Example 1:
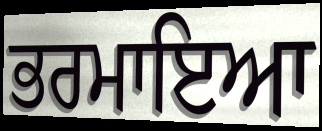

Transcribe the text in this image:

ਭਰਮਾਇਆ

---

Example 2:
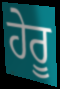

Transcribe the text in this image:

ਹੇਰੂ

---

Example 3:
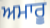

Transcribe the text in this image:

ਅਮਾਰੂ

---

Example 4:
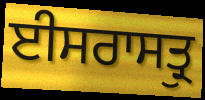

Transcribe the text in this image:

ਈਸਰਾਸਤ੍ਰੁ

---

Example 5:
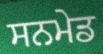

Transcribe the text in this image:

ਸਨਮੇਡ